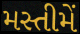
મસ્તીમેં